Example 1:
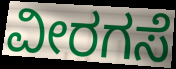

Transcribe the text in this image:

ವೀರಗಸೆ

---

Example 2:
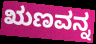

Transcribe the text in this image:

ಋಣವನ್ನ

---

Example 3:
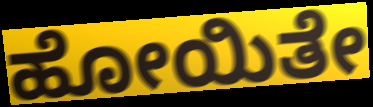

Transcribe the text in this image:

ಹೋಯಿತೇ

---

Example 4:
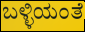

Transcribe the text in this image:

ಬಳ್ಳಿಯಂತೆ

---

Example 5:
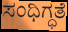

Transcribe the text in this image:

ಸಂಧಿಗ್ಧತೆ